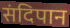
संदिपान